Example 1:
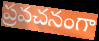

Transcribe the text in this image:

ప్రవచనంగా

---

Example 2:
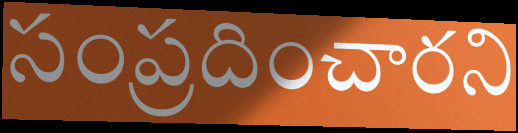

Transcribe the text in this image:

సంప్రదించారని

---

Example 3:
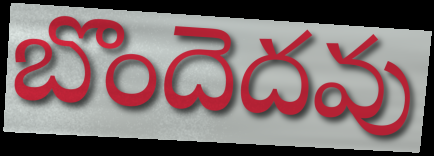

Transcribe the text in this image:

బొందెదవు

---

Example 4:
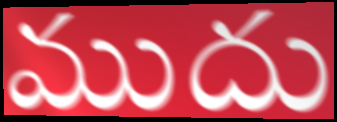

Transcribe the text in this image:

ముదు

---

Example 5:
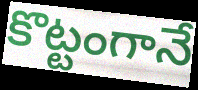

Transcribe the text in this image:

కొట్టంగానే